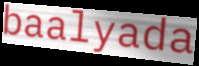
baalyada